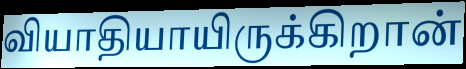
வியாதியாயிருக்கிறான்